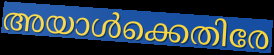
അയാൾക്കെതിരേ